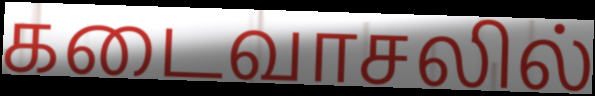
கடைவாசலில்